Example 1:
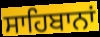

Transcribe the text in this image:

ਸਾਹਿਬਾਨਾਂ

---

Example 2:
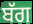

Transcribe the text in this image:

ਬੱਗ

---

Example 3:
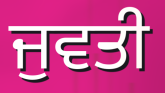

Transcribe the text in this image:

ਜੁਵਤੀ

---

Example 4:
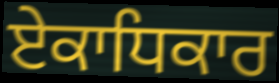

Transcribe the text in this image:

ਏਕਾਧਿਕਾਰ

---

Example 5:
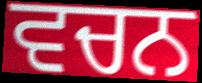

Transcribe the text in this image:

ਵਚਨ